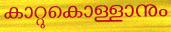
കാറ്റുകൊള്ളാനും